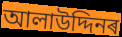
আলাউদ্দিনৰ